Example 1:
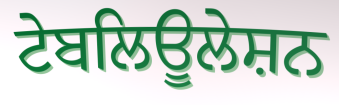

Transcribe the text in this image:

ਟੇਬਲਿਊਲੇਸ਼ਨ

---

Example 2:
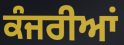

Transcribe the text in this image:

ਕੰਜਰੀਆਂ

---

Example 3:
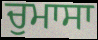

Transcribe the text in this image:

ਚੁਮਾਸਾ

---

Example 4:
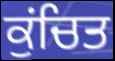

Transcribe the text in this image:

ਕੁਂਚਿਤ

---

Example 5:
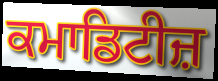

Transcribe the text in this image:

ਕਮਾਡਿਟੀਜ਼